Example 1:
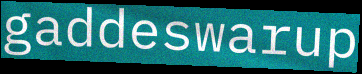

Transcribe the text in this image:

gaddeswarup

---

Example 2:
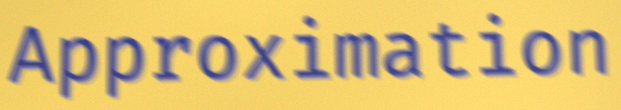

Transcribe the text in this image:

Approximation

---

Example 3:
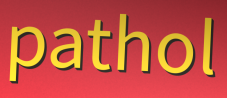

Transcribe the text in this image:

pathol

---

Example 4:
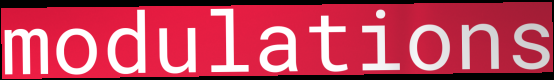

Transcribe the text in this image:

modulations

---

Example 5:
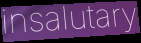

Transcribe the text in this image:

insalutary